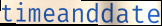
timeanddate